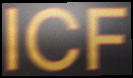
ICF